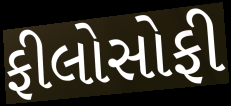
ફીલોસોફી